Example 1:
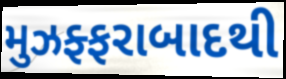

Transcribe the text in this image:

મુઝફ્ફરાબાદથી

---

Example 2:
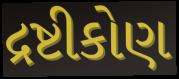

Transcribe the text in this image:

દ્રષ્ટીકોણ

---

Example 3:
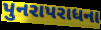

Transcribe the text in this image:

પુનરાપરાધના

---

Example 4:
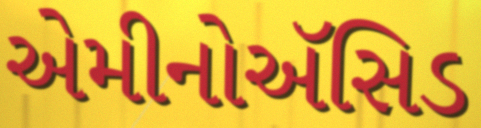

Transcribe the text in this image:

એમીનોઍસિડ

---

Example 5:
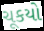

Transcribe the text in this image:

ચૂકયો